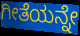
ಗೀತೆಯನ್ನೇ